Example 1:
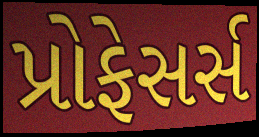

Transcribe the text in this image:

પ્રોફેસર્સ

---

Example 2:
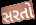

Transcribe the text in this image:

સરતો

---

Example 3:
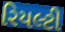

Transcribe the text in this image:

રિયલ્ટી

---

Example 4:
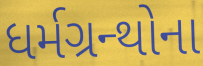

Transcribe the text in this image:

ધર્મગ્રન્થોના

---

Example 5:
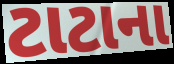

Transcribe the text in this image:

ટાટાના